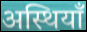
अस्थियाँ